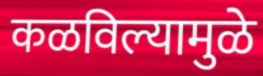
कळविल्यामुळे